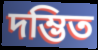
দম্ভিত